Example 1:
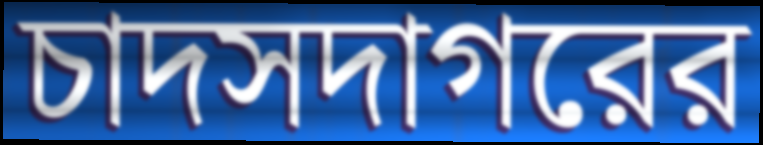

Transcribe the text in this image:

চাদসদাগরের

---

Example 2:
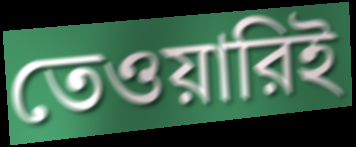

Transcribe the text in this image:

তেওয়ারিই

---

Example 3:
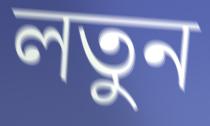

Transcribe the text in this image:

লতুন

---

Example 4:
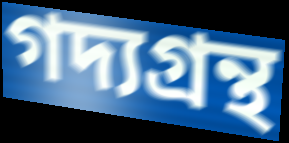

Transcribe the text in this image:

গদ্যগ্রন্থ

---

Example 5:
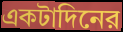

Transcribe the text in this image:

একটাদিনের